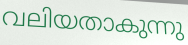
വലിയതാകുന്നു